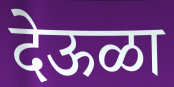
देऊळा